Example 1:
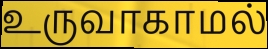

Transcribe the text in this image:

உருவாகாமல்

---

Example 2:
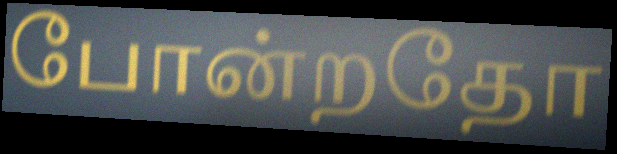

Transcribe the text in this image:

போன்றதோ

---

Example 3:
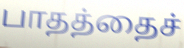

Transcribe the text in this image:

பாதத்தைச்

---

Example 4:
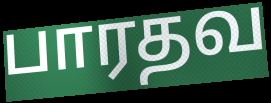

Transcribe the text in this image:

பாரதவ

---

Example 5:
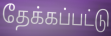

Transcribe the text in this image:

தேக்கப்பட்டு